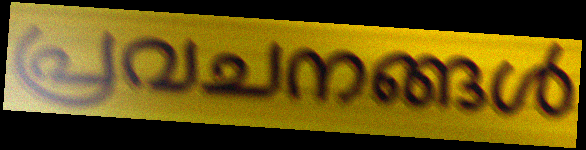
പ്രവചനങ്ങൾ